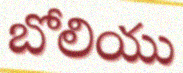
బోలియు